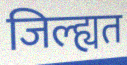
जिल्ह्यत